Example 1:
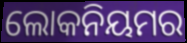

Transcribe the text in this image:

ଲୋକନିୟମର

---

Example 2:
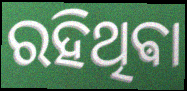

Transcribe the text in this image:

ରହିଥିଵା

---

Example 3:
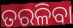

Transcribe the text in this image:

ତରଳିବା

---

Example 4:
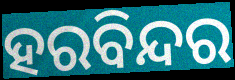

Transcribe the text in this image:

ହରବିନ୍ଦର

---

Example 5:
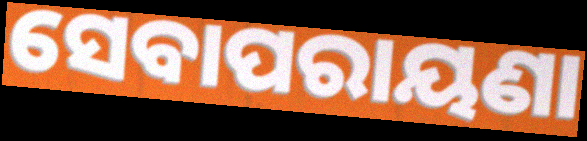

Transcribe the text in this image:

ସେବାପରାୟଣା